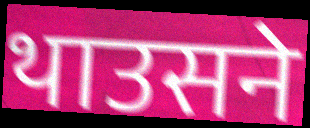
थाउसने